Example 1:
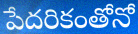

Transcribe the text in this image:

పేదరికంతోనో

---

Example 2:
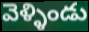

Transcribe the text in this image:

వెళ్ళిండు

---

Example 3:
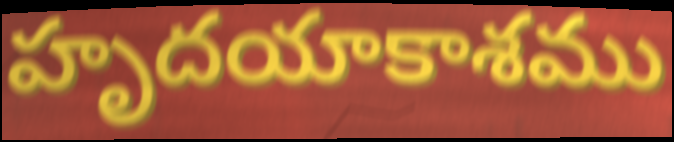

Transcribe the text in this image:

హృదయాకాశము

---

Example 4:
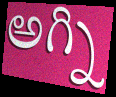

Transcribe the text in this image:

అగ్ని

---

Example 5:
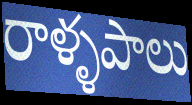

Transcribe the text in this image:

రాళ్ళపాలు